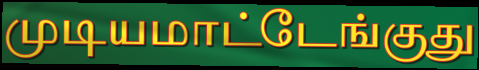
முடியமாட்டேங்குது